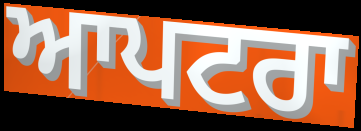
ਆਪਟਰਾ